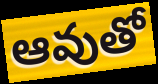
ఆవుతో